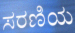
ಸರಣಿಯ